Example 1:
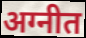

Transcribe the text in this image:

अग्नीत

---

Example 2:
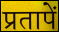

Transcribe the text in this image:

प्रतापें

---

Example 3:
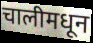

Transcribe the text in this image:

चालीमधून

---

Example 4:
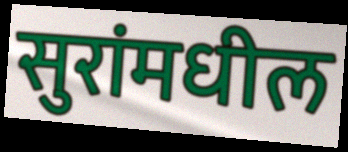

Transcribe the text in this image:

सुरांमधील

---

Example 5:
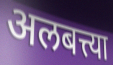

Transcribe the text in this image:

अलबत्त्या